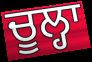
ਚੂਲ੍ਹਾ